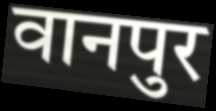
वानपुर